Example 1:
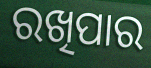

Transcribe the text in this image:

ରଖିପାର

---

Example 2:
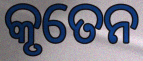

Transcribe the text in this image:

କୃତେନ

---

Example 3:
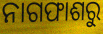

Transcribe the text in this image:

ନାଗଫାଶରୁ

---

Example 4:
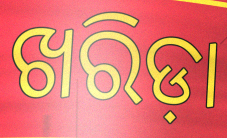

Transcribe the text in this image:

ଖରିଡ଼ା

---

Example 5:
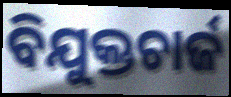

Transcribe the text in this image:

ବିଯୁକ୍ତଚାର୍ଜ